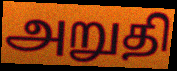
அறுதி